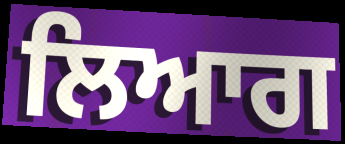
ਲਿਆਗ